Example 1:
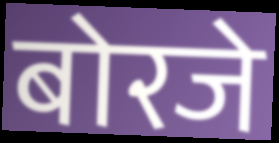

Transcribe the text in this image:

बोरजे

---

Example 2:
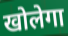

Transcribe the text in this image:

खोलेगा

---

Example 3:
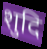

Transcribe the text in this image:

शुदि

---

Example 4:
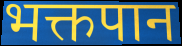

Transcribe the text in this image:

भक्तपान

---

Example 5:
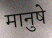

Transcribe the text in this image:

मानुषे